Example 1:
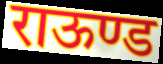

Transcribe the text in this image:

राऊण्ड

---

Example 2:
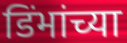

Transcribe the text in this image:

डिंभांच्या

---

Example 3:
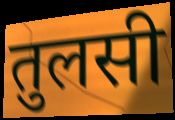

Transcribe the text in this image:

तुलसी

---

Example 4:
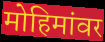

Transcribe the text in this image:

मोहिमांवर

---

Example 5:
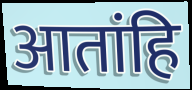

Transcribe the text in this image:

आतांहि